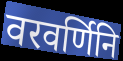
वरवर्णिनि